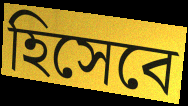
হিসেবে